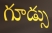
గూడ్సు